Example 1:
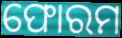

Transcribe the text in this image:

ଫୋରମ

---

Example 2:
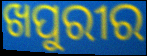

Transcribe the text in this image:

ଖପୁରୀର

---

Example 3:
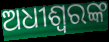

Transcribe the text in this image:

ଅଧୀଶ୍ୱରଙ୍କ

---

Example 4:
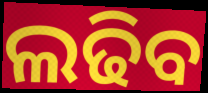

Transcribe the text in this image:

ଲଢିବ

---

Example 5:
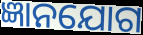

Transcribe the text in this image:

ଜ୍ଞାନଯୋଗ